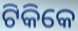
ଟିକିକେ